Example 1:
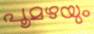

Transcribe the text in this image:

പൂമഴയും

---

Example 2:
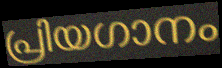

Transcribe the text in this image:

പ്രിയഗാനം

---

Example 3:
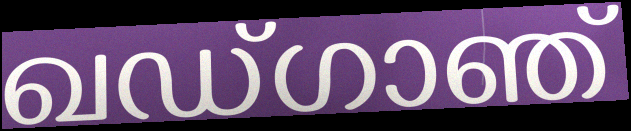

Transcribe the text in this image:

ഖഡ്ഗാഞ്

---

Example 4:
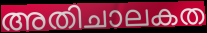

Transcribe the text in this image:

അതിചാലകത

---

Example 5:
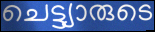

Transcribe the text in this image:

ചെട്ട്യാരുടെ